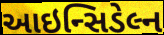
આઇન્સિડેલ્ન